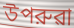
উপৰুৱা